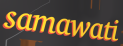
samawati